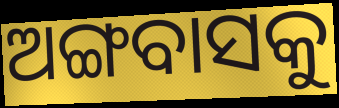
ଅଙ୍ଗବାସକୁ